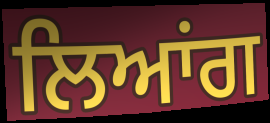
ਲਿਆਂਗ